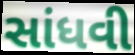
સાંધવી